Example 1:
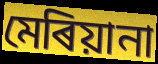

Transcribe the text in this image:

মেৰিয়ানা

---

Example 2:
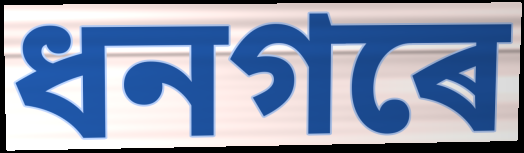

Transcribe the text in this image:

ধনগৰে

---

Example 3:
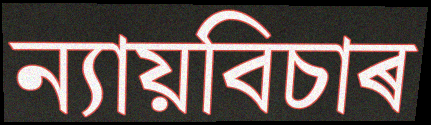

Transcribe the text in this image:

ন্যায়বিচাৰ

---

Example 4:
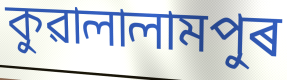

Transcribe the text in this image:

কুৱালালামপুৰ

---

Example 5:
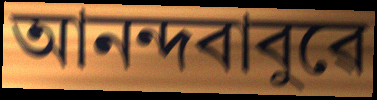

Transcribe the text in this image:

আনন্দবাবুৱে